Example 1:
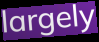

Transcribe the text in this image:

largely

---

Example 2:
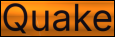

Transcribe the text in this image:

Quake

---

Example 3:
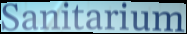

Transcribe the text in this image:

Sanitarium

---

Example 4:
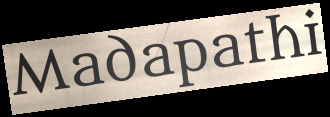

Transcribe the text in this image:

Madapathi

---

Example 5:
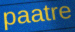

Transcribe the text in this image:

paatre